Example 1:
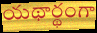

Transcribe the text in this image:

యథార్థంగా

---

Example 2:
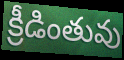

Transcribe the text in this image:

క్రీడింతువు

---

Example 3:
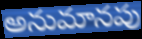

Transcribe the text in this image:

అనుమానపు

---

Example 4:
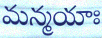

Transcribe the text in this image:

మన్మయాః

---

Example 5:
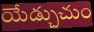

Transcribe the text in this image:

యేడ్చుచుం